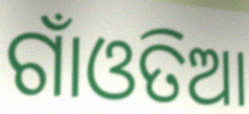
ଗାଁଓତିଆ